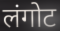
लंगोट